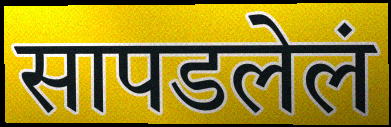
सापडलेलं